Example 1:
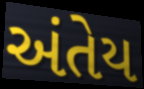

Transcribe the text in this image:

અંતેય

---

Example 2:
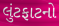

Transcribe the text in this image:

લુંટફાટનો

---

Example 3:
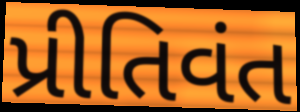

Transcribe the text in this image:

પ્રીતિવંત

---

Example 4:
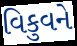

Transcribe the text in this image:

વિકુવને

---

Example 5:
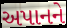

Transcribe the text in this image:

અપાનને